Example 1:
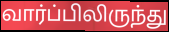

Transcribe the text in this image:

வார்ப்பிலிருந்து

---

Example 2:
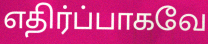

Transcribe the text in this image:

எதிர்ப்பாகவே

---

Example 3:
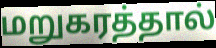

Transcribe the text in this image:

மறுகரத்தால்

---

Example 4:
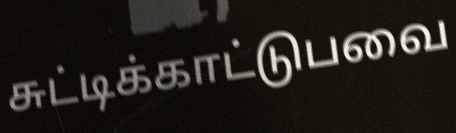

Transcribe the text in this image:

சுட்டிக்காட்டுபவை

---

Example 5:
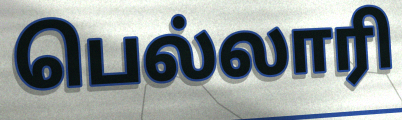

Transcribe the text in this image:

பெல்லாரி